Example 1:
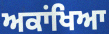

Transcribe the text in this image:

ਅਕਾਂਖਿਆ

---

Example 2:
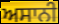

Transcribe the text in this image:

ਅਸਾਨੀ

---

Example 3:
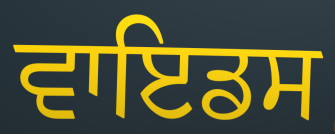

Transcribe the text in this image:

ਵਾਇਡਸ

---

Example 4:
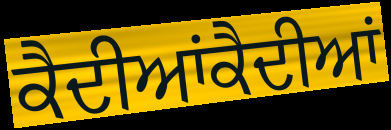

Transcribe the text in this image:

ਕੈਦੀਆਂਕੈਦੀਆਂ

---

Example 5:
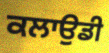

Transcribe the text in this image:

ਕਲਾਉਡੀ